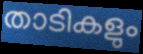
താടികളും